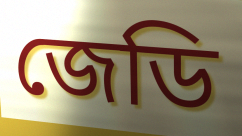
জেডি